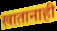
खातानाही